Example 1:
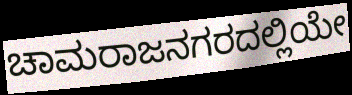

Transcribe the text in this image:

ಚಾಮರಾಜನಗರದಲ್ಲಿಯೇ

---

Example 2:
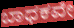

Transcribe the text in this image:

ಬಾಧಕವೇ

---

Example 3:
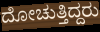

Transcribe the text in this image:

ದೋಚುತ್ತಿದ್ದರು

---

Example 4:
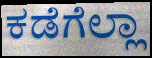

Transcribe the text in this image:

ಕಡೆಗೆಲ್ಲಾ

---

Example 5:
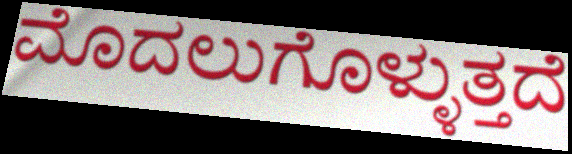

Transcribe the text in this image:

ಮೊದಲುಗೊಳ್ಳುತ್ತದೆ